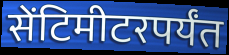
सेंटिमीटरपर्यंत